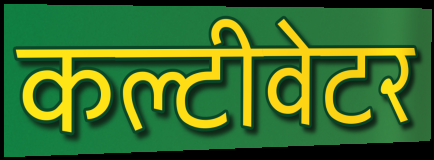
कल्टीवेटर